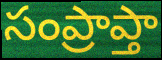
సంప్రాప్తా